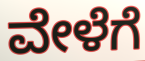
ವೇಳೆಗೆ